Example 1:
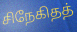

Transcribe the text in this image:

சிநேகிதத்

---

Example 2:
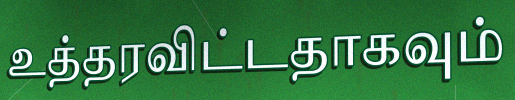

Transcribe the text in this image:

உத்தரவிட்டதாகவும்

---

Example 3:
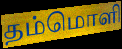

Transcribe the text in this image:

தம்மொளி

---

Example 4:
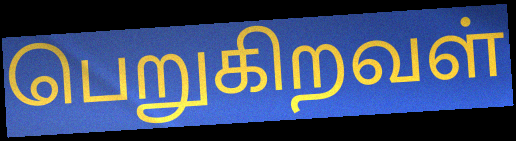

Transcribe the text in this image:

பெறுகிறவள்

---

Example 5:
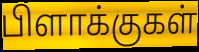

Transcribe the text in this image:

பிளாக்குகள்